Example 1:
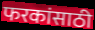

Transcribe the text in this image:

फरकांसाठी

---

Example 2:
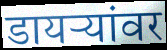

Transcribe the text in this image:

डायऱ्यांवर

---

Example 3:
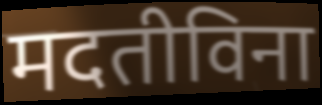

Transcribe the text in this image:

मदतीविना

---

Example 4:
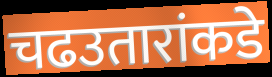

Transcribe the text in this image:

चढउतारांकडे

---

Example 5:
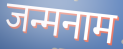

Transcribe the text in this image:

जन्मनाम